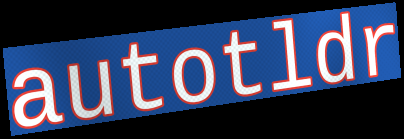
autotldr